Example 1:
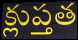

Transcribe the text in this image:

క్లుప్తత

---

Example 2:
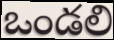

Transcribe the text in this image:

ఒండలి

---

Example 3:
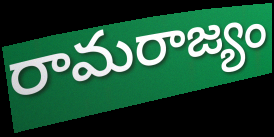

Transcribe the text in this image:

రామరాజ్యం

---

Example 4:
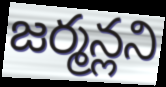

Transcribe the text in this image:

జర్మన్లని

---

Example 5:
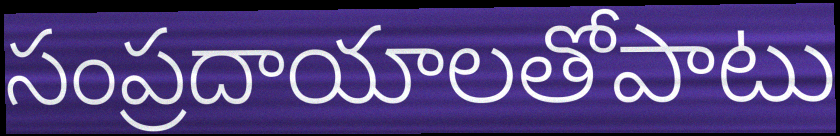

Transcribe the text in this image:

సంప్రదాయాలతోపాటు